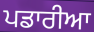
ਪਡਾਰੀਆ